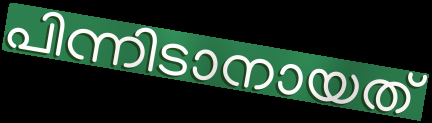
പിന്നിടാനായത്